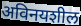
अविनयशील